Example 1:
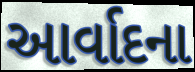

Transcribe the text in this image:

આર્વાદના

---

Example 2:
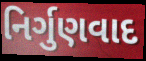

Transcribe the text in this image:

નિર્ગુણવાદ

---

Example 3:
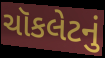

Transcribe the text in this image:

ચૉકલેટનું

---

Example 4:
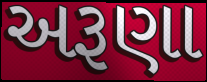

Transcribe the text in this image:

અરૂણા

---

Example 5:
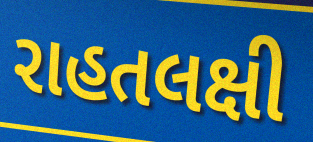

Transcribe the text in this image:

રાહતલક્ષી